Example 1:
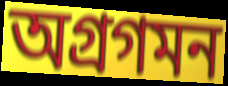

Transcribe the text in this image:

অগ্রগমন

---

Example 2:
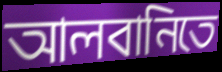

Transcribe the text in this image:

আলবানিতে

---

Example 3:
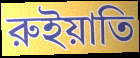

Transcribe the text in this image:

রুইয়াতি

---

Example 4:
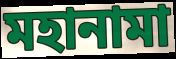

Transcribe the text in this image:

মহানামা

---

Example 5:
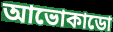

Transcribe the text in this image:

আভোকাডো